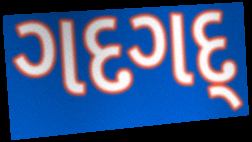
ગદગદ્